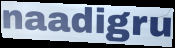
naadigru